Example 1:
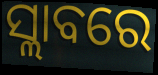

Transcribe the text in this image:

ସ୍ଲାବରେ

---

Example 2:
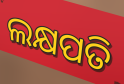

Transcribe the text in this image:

ଲକ୍ଷପତି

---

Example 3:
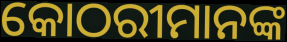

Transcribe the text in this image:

କୋଠରୀମାନଙ୍କ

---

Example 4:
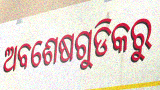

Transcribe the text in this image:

ଅବଶେଷଗୁଡିକରୁ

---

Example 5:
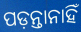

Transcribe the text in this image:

ପଡ଼ନ୍ତାନାହିଁ